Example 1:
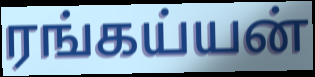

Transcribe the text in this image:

ரங்கய்யன்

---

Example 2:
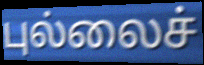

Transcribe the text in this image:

புல்லைச்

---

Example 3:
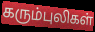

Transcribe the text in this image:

கரும்புலிகள்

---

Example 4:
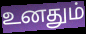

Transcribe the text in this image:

உனதும்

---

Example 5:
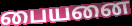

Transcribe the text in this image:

பையனை